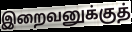
இறைவனுக்குத்